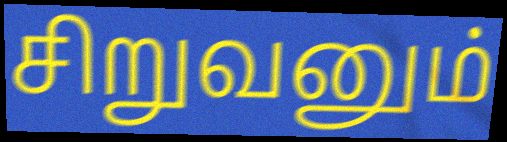
சிறுவனும்